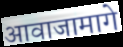
आवाजामागे